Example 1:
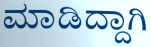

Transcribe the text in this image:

ಮಾಡಿದ್ದಾಗಿ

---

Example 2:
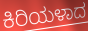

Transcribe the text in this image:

ಕಿರಿಯಳಾದ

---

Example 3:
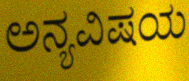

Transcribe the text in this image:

ಅನ್ಯವಿಷಯ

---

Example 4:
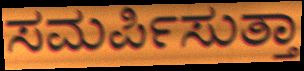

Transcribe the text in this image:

ಸಮರ್ಪಿಸುತ್ತಾ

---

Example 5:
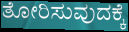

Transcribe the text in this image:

ತೋರಿಸುವುದಕ್ಕೆ